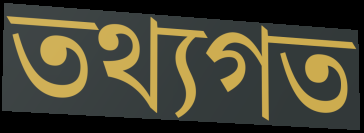
তথ্যগত